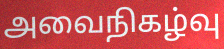
அவைநிகழ்வு